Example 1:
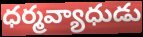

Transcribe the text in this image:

ధర్మవ్యాధుడు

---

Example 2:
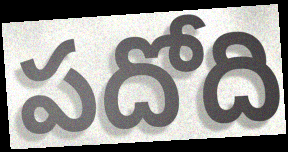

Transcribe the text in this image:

పదోది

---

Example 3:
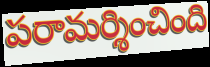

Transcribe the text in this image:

పరామర్శించింది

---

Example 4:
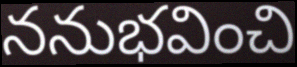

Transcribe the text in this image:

ననుభవించి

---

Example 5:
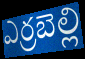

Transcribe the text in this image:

ఎర్రబెల్లి